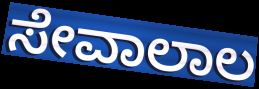
ಸೇವಾಲಾಲ